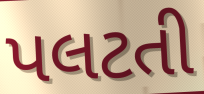
પલટતી